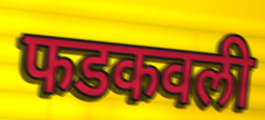
फडकवली